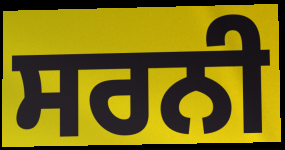
ਸਰਨੀ